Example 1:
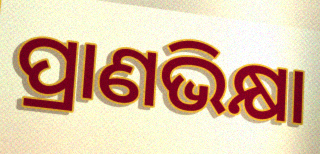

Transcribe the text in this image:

ପ୍ରାଣଭିକ୍ଷା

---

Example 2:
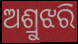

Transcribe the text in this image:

ଅଶ୍ରୁଝରି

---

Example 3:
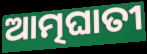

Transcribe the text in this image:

ଆତ୍ମଘାତୀ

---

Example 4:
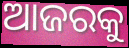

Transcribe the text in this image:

ଆଜରକୁ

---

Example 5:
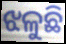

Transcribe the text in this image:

ଝଳୁଛି